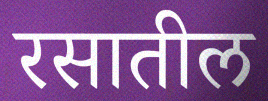
रसातील